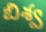
బిశ్వ